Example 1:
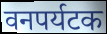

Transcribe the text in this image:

वनपर्यटक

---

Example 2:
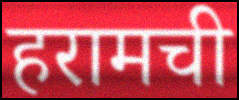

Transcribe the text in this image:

हरामची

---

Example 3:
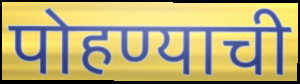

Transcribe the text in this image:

पोहण्याची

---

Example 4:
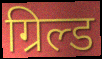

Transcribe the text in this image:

ग्रिल्ड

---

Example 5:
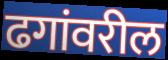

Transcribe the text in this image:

ढगांवरील